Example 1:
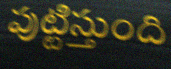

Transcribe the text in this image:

పుట్టిస్తుంది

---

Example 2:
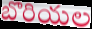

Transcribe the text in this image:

బొరియల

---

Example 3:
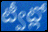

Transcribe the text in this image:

ట్వీట్లో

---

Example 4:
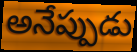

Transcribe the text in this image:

అనేప్పుడు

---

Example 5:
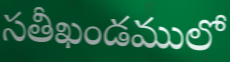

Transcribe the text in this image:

సతీఖండములో